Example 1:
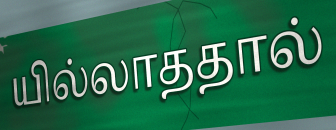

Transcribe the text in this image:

யில்லாததால்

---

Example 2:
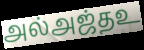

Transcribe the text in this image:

அல்அஜ்தஉ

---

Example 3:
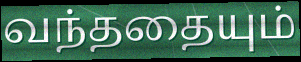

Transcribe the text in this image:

வந்ததையும்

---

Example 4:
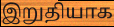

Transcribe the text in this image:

இறுதியாக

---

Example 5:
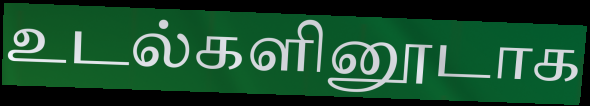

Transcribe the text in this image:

உடல்களினூடாக